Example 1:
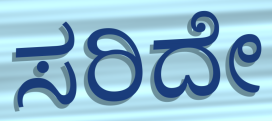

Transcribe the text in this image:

ಸರಿದೇ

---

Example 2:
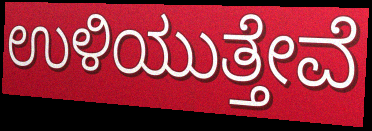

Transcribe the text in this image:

ಉಳಿಯುತ್ತೇವೆ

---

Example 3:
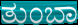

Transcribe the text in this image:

ತುಂಬಾ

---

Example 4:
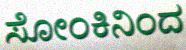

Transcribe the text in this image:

ಸೋಂಕಿನಿಂದ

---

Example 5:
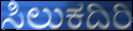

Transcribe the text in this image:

ಸಿಲುಕದಿರಿ